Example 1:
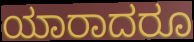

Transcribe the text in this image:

ಯಾರಾದರೂ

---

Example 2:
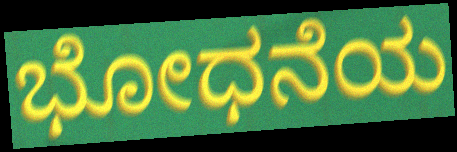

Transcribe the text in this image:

ಭೋಧನೆಯ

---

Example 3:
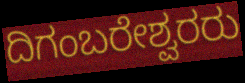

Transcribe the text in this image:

ದಿಗಂಬರೇಶ್ವರರು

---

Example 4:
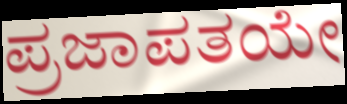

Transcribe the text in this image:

ಪ್ರಜಾಪತಯೇ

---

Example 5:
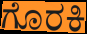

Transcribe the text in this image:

ಗೊರಕಿ